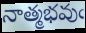
నాత్మభవుఁ